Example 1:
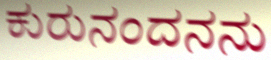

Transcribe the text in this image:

ಕುರುನಂದನನು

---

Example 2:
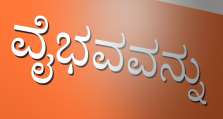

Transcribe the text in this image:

ವೈಭವವನ್ನು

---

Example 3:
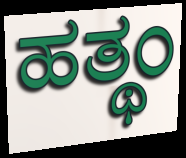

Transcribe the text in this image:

ಹತ್ಥಂ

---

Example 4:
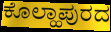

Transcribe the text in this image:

ಕೊಲ್ಹಾಪುರದ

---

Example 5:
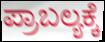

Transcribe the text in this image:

ಪ್ರಾಬಲ್ಯಕ್ಕೆ